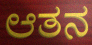
ಆತನ